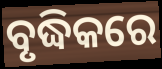
ବୃଦ୍ଧିକରେ